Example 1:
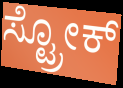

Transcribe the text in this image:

ಸ್ಟ್ರೋಕ್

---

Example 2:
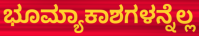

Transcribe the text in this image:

ಭೂಮ್ಯಾಕಾಶಗಳನ್ನೆಲ್ಲ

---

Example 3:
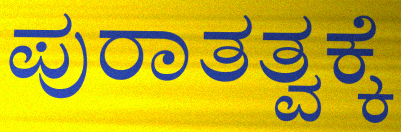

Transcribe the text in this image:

ಪುರಾತತ್ವಕ್ಕೆ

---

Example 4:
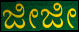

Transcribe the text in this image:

ಜೀಜೀ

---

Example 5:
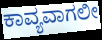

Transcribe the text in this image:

ಕಾವ್ಯವಾಗಲೀ